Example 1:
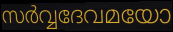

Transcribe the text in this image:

സർവ്വദേവമയോ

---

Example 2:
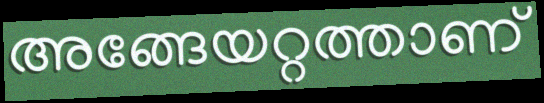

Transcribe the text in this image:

അങ്ങേയറ്റത്താണ്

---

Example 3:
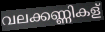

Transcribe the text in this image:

വലക്കണ്ണികള്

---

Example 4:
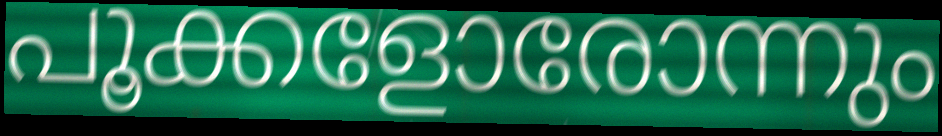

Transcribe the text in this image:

പൂക്കളോരോന്നും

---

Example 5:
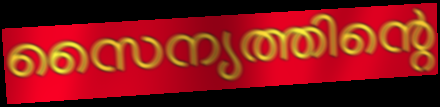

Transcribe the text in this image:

സൈന്യത്തിന്റെ